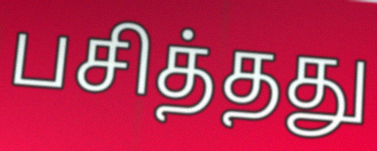
பசித்தது